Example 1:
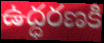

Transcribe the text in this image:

ఉద్ధరణకి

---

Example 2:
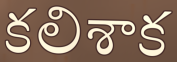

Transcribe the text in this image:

కలిశాక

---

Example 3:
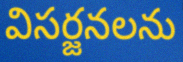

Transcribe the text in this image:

విసర్జనలను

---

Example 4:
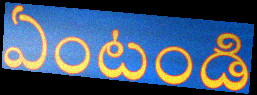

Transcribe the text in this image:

ఏంటండి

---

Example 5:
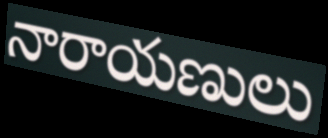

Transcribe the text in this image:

నారాయణులు